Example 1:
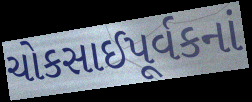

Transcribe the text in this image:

ચોકસાઈપૂર્વકનાં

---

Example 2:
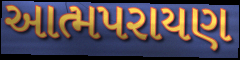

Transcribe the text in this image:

આત્મપરાયણ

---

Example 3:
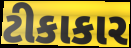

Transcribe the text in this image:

ટીકાકાર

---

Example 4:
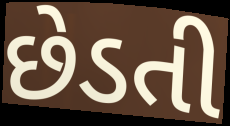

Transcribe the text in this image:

છેડતી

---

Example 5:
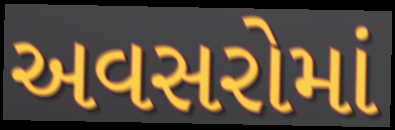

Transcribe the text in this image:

અવસરોમાં